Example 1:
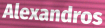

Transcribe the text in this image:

Alexandros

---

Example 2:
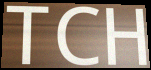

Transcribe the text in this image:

TCH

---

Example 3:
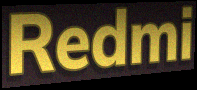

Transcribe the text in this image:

Redmi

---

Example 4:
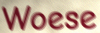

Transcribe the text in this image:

Woese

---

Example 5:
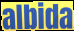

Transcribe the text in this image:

albida